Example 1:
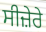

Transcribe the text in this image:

ਸੀਜ਼ੇਰੇ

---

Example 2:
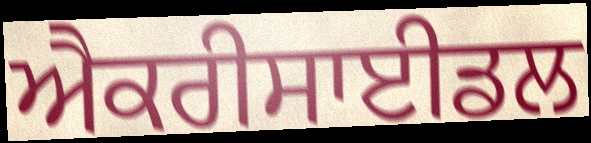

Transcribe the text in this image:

ਐਕਰੀਸਾਈਡਲ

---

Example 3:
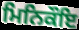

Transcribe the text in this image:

ਮਿਨਿਕੌਇ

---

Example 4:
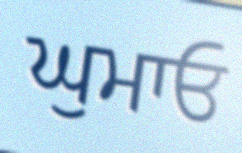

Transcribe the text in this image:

ਘੁਮਾਓ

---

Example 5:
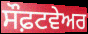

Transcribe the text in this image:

ਸੌਫ਼ਟਵੇਅਰ